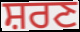
ਸ਼ਰਣ